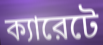
ক্যারেটে